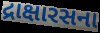
દ્રાક્ષારસના